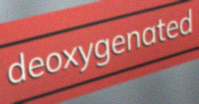
deoxygenated